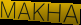
MAKHA